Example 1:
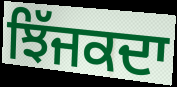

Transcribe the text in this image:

ਝਿੱਜਕਦਾ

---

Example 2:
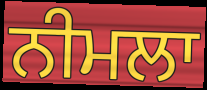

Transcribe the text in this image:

ਨੀਮਲਾ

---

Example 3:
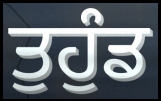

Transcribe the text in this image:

ਤੁਹੁੰਡ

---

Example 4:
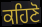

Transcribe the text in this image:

ਕਹਿਣੋ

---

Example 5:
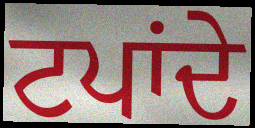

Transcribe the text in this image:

ਟਪਾਂਦੇ